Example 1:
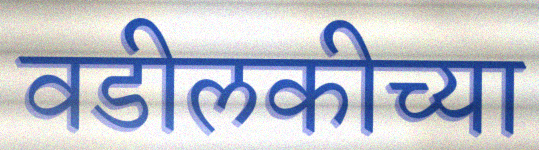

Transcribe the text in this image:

वडीलकीच्या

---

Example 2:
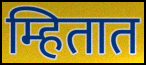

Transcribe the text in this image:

म्हितात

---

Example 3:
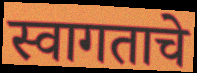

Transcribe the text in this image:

स्वागताचे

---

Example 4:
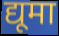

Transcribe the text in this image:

द्यूमा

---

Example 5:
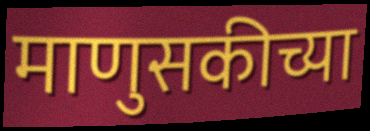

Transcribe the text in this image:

माणुसकीच्या